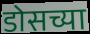
डोसच्या